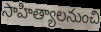
సాహిత్యాలనుంచి